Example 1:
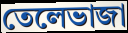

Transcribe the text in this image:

তেলেভাজা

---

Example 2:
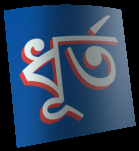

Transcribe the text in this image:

ধূর্ত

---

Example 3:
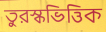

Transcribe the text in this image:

তুরস্কভিত্তিক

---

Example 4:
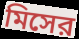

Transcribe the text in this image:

মিসের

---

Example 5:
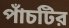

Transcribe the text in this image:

পাঁচটির